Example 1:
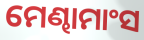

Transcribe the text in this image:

ମେଣ୍ଢାମାଂସ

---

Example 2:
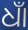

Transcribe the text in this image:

ଧାଁ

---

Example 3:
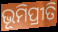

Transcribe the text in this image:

ଭୂମିପ୍ରୀତି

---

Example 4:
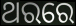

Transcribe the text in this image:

ଥରରେ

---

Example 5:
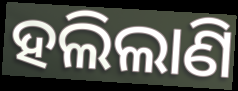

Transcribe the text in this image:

ହଲିଲାଣି